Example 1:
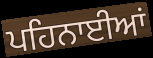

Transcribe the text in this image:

ਪਹਿਨਾਈਆਂ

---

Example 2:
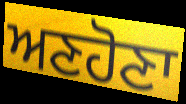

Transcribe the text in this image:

ਅਣਹੋਣਾ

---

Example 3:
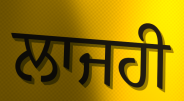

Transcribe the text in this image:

ਲਾਜਹੀ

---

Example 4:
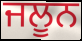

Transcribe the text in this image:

ਜਲੂਨ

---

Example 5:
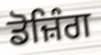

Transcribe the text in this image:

ਡੋਜ਼ਿੰਗ